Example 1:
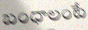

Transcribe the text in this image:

బంధాలంటే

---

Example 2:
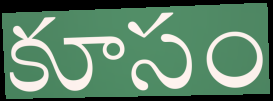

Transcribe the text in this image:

కూసం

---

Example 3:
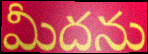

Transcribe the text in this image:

మీదను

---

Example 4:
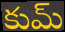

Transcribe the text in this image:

కుమ్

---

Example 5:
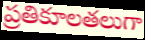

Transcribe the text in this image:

ప్రతికూలతలుగా